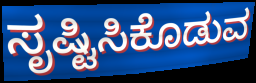
ಸೃಷ್ಟಿಸಿಕೊಡುವ